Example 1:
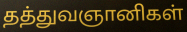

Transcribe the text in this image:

தத்துவஞானிகள்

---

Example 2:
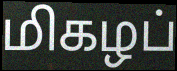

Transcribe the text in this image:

மிகழப்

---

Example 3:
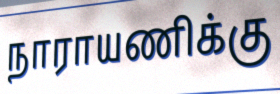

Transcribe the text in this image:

நாராயணிக்கு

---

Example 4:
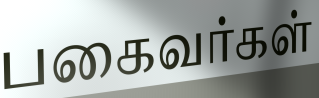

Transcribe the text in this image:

பகைவர்கள்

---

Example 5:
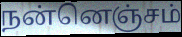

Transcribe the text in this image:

நன்னெஞ்சம்